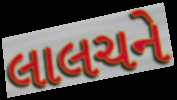
લાલચને